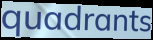
quadrants